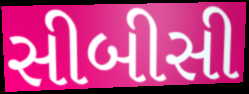
સીબીસી